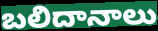
బలిదానాలు